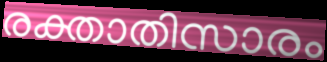
രക്താതിസാരം